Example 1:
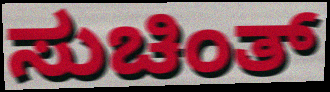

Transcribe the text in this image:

ಸುಚಿಂತ್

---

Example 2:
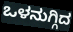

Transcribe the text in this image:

ಒಳನುಗ್ಗಿದ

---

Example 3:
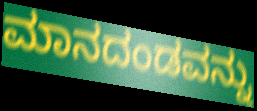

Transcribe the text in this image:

ಮಾನದಂಡವನ್ನು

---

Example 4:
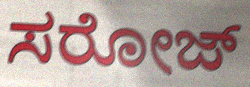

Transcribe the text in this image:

ಸರೋಜ್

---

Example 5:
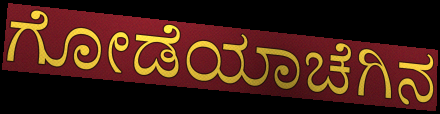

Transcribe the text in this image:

ಗೋಡೆಯಾಚೆಗಿನ